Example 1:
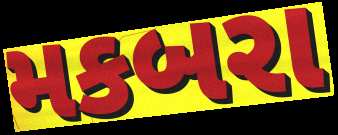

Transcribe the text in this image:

મકબરા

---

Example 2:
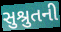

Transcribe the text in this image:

સુશ્રુતની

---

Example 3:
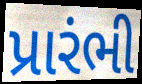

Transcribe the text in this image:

પ્રારંભી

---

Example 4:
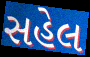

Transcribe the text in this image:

સહેલ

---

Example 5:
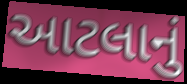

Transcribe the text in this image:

આટલાનું